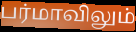
பர்மாவிலும்